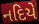
નદિયે